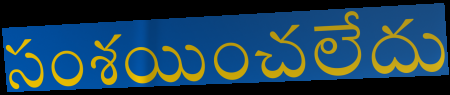
సంశయించలేదు